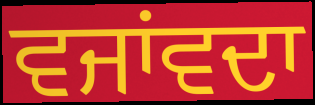
ਵਜਾਂਵਦਾ